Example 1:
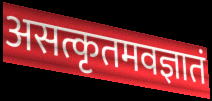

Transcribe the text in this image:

असत्कृतमवज्ञातं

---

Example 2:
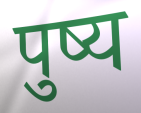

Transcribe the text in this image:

पुष्य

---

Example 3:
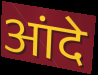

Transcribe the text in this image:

आंदे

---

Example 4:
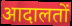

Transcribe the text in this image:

आदालतों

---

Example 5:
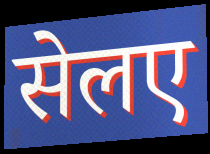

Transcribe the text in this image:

सेलए